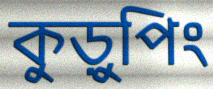
কুড়ুপিং